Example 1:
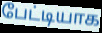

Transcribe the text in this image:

பேட்டியாக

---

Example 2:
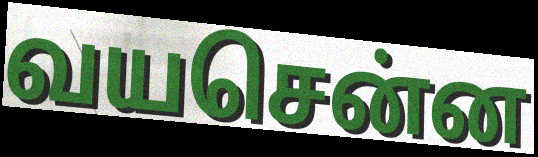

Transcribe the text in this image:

வயசென்ன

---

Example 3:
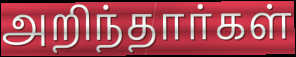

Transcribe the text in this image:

அறிந்தார்கள்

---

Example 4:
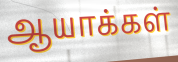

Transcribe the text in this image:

ஆயாக்கள்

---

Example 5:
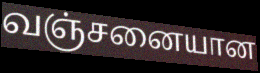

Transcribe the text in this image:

வஞ்சனையான